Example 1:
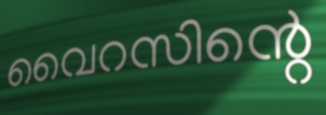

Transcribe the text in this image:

വൈറസിന്റെ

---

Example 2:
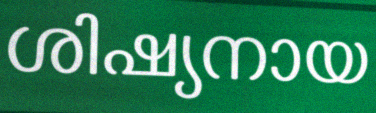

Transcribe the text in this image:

ശിഷ്യനായ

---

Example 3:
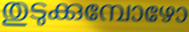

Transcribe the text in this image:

തുടുക്കുമ്പോഴോ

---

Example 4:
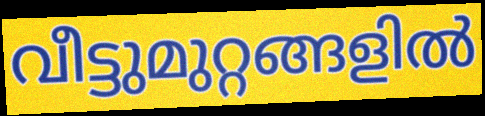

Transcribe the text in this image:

വീട്ടുമുറ്റങ്ങളിൽ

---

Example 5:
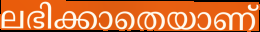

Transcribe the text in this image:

ലഭിക്കാതെയാണ്